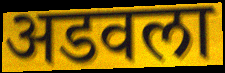
अडवला